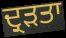
ਦ੍ਰੜਤਾ